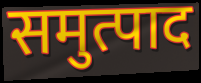
समुत्पाद